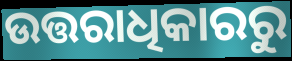
ଉତ୍ତରାଧିକାରରୁ